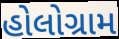
હોલોગ્રામ